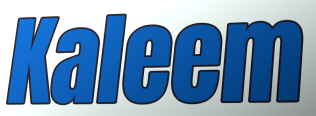
Kaleem